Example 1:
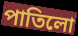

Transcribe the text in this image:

পাতিলো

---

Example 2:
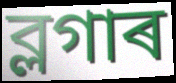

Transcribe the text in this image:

ব্লগাৰ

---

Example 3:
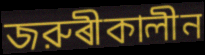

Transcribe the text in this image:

জৰুৰীকালীন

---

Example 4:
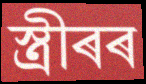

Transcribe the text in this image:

স্ত্ৰীৰৰ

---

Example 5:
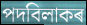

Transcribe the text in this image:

পদবিলাকৰ